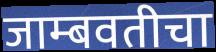
जाम्बवतीचा